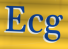
Ecg